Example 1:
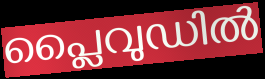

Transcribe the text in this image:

പ്ലൈവുഡിൽ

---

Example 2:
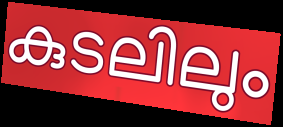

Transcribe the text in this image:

കുടലിലും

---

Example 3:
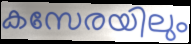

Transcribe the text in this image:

കസേരയിലും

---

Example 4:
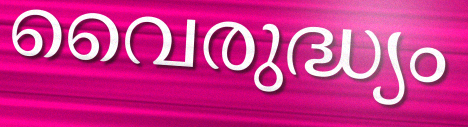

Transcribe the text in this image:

വൈരുദ്ധ്യം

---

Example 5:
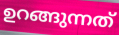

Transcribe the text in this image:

ഉറങ്ങുന്നത്